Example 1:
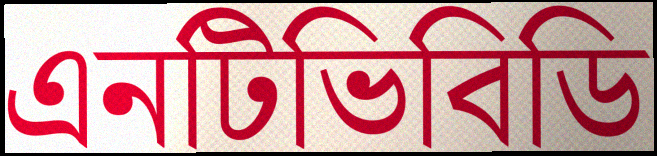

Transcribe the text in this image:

এনটিভিবিডি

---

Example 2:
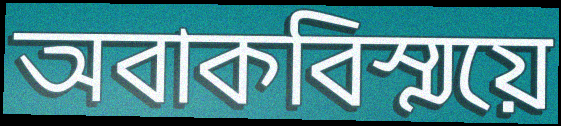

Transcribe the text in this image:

অবাকবিস্ময়ে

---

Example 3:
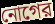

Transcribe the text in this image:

নোগের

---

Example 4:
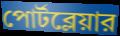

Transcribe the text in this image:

পোর্টব্লেয়ার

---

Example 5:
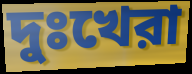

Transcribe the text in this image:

দুঃখেরা